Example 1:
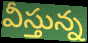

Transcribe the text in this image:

వీస్తున్న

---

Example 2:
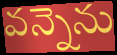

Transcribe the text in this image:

వన్నెను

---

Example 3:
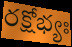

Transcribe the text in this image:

రక్షోభ్యః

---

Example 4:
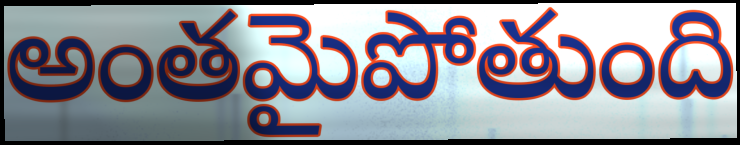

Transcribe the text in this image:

అంతమైపోతుంది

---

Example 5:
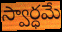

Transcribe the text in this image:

స్వార్ధమే